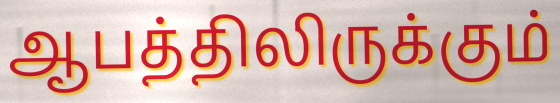
ஆபத்திலிருக்கும்